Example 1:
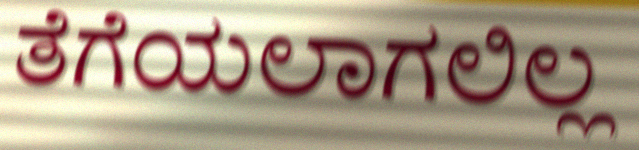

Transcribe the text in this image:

ತೆಗೆಯಲಾಗಲಿಲ್ಲ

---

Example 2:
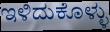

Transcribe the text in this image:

ಇಳಿದುಕೊಳ್ಳು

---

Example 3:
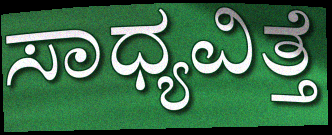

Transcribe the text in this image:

ಸಾಧ್ಯವಿತ್ತೆ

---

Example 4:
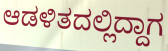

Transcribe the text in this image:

ಆಡಳಿತದಲ್ಲಿದ್ದಾಗ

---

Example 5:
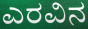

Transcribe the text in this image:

ಎರವಿನ